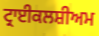
ਟ੍ਰਾਈਕਲਸ਼ੀਅਮ